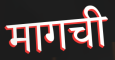
मागची